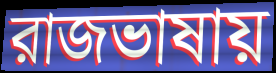
রাজভাষায়